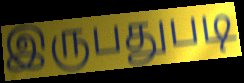
இருபதுபடி